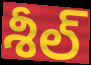
శీల్